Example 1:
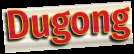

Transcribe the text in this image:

Dugong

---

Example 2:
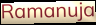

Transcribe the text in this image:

Ramanuja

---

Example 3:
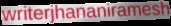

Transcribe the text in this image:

writerjhananiramesh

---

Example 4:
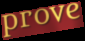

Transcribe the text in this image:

prove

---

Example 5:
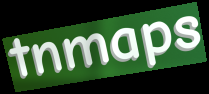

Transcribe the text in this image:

tnmaps